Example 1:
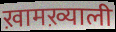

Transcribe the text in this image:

ख़ामख़्याली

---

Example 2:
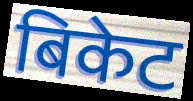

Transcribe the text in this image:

बिकेट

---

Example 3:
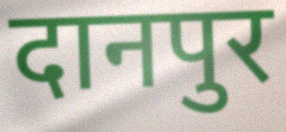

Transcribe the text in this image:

दानपुर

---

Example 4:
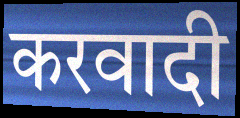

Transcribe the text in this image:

करवादी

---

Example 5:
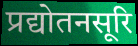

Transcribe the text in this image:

प्रद्योतनसूरि